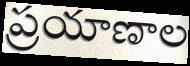
ప్రయాణాల